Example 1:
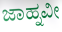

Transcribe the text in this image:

ಜಾಹ್ನವೀ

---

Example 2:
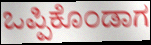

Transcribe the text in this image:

ಒಪ್ಪಿಕೊಂಡಾಗ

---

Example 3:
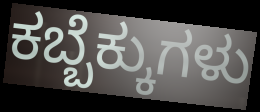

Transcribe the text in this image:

ಕಬ್ಬೆಕ್ಕುಗಳು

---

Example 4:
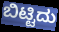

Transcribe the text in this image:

ಬಿಟ್ಟಿದು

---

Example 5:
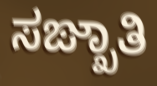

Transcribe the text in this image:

ಸಙ್ಖಾತಿ